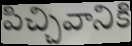
పిచ్చివానికి